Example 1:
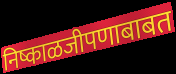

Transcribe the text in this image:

निष्काळजीपणाबाबत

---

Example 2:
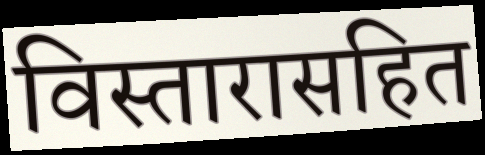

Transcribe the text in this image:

विस्तारासहित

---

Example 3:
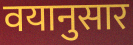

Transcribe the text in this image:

वयानुसार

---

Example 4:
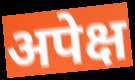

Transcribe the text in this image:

अपेक्ष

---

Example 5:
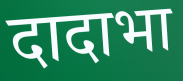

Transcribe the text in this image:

दादाभा